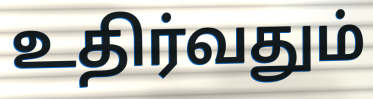
உதிர்வதும்